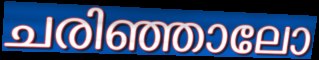
ചരിഞ്ഞാലോ